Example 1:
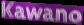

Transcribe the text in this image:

Kawano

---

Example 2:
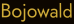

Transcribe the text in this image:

Bojowald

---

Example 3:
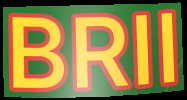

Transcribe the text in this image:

BRII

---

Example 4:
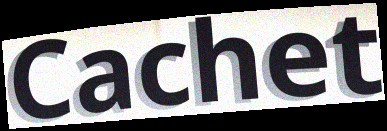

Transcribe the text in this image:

Cachet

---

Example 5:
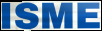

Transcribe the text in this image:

ISME